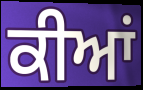
ਕੀਆਂ